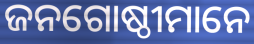
ଜନଗୋଷ୍ଠୀମାନେ